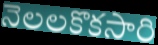
నెలలకొకసారి